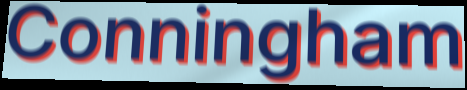
Conningham